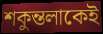
শকুন্তলাকেই